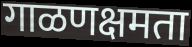
गाळणक्षमता